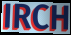
IRCH